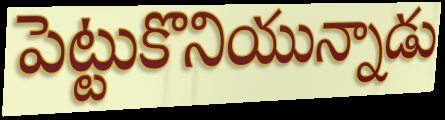
పెట్టుకొనియున్నాడు